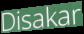
Disakar